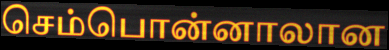
செம்பொன்னாலான